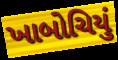
ખાબોચિયું